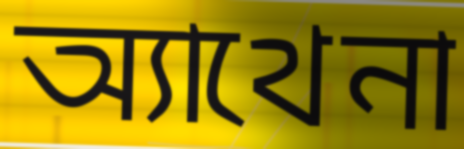
অ্যাথেনা